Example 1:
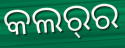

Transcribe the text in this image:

କଲର୍‌ର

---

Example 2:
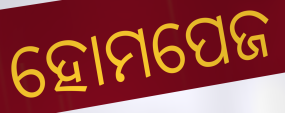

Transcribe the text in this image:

ହୋମପେଜ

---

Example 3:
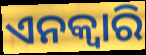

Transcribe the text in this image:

ଏନକ୍ଵାରି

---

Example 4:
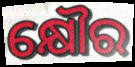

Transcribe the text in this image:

କ୍ଷୌର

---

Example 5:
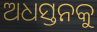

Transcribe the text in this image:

ଅଧସ୍ତନକୁ